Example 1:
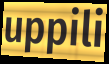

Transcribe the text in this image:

uppili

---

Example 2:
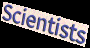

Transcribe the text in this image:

Scientists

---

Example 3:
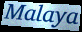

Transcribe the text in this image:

Malaya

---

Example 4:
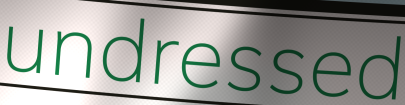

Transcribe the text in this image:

undressed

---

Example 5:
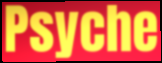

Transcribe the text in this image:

Psyche